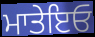
ਮਾਤੇਇਓ